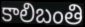
కాలిబంతి